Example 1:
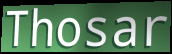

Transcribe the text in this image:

Thosar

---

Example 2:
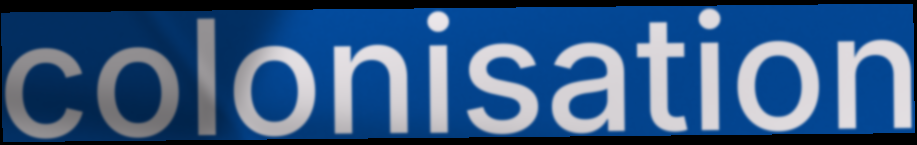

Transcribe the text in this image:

colonisation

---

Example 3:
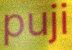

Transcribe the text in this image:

puji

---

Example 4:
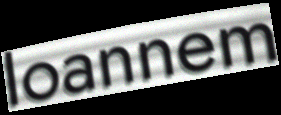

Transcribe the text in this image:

Ioannem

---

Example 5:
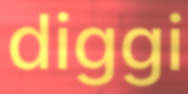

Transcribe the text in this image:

diggi